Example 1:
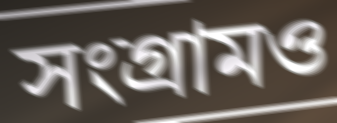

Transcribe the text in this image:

সংগ্রামও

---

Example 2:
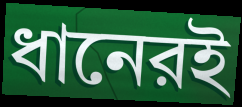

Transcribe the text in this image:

ধানেরই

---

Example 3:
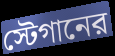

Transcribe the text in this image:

স্টেগানের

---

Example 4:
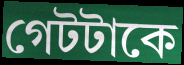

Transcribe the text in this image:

গেটটাকে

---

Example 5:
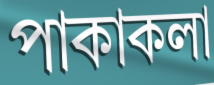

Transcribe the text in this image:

পাকাকলা